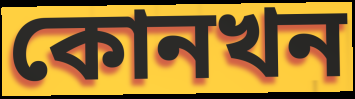
কোনখন